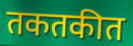
तकतकीत